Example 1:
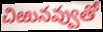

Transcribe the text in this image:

చిఱునవ్వుతో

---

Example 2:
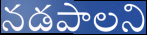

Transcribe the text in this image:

నడపాలని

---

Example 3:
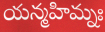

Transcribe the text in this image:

యన్మహిమ్నః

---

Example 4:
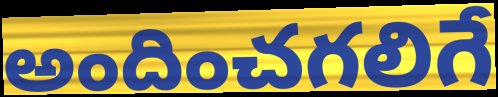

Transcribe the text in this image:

అందించగలిగే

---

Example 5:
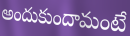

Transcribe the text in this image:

అందుకుందామంటే